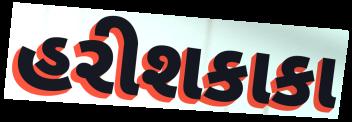
હરીશકાકા